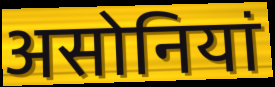
असोनियां